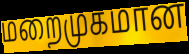
மறைமுகமான